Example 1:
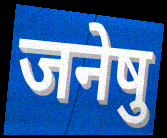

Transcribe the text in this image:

जनेषु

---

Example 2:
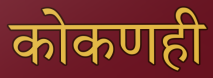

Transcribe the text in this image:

कोकणही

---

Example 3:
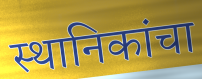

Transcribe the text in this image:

स्थानिकांचा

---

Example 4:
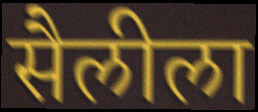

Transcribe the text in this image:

सैलीला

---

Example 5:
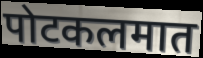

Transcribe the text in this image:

पोटकलमात